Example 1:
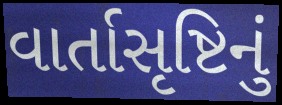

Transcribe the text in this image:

વાર્તાસૃષ્ટિનું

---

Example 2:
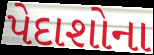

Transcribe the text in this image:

પેદાશોના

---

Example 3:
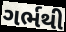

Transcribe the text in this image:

ગર્ભથી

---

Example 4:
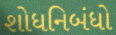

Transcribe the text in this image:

શોધનિબંધો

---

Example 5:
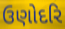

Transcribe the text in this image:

ઉણોદરિ